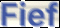
Fief